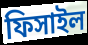
ফিসাইল